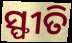
ସ୍ଫୀତି